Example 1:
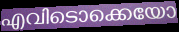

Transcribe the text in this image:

എവിടൊക്കെയോ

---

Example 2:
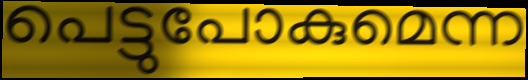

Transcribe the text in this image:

പെട്ടുപോകുമെന്ന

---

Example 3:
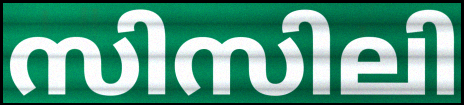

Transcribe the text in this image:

സിസിലി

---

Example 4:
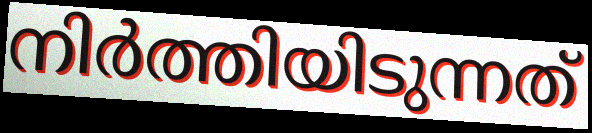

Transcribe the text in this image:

നിർത്തിയിടുന്നത്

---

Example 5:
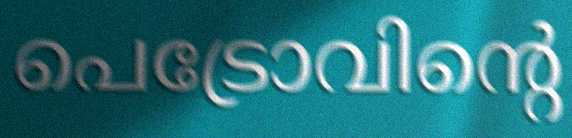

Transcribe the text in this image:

പെട്രോവിന്റെ